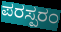
ಪರಸ್ಪರಂ